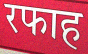
रफाह